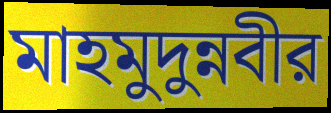
মাহমুদুন্নবীর